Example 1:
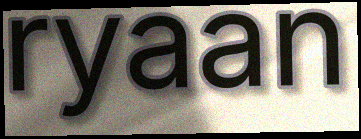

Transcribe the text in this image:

ryaan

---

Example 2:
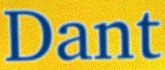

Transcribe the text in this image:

Dant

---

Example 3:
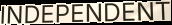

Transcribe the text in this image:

INDEPENDENT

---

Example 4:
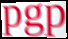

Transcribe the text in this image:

pgp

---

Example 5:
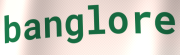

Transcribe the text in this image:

banglore